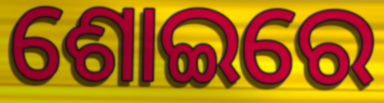
ଶୋଇରେ